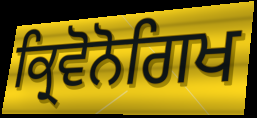
ਕ੍ਰਿਵੋਨੋਗਿਖ